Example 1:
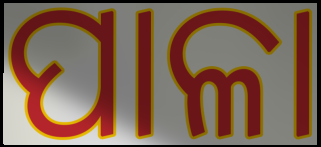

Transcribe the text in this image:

ପାଳା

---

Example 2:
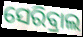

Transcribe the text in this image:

ସେରିବ୍ରାଲ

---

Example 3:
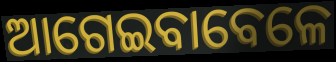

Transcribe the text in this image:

ଆଗେଇବାବେଳେ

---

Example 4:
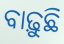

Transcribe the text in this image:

ବାଢ଼ୁଛି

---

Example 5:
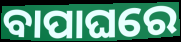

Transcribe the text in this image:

ବାପାଘରେ